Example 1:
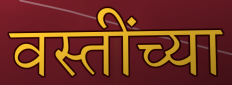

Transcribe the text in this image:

वस्तींच्या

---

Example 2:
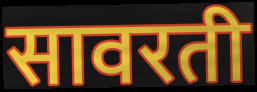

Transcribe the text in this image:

सावरती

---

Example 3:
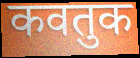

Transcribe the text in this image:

कवतुक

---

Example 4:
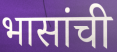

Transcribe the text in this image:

भासांची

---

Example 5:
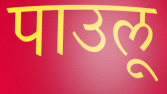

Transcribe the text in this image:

पाउलू